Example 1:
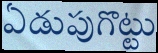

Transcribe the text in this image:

ఏడుపుగొట్టు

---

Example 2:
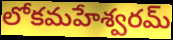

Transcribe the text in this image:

లోకమహేశ్వరమ్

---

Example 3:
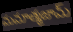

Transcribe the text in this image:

మమాత్మజామ్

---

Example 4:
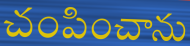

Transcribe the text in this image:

చంపించాను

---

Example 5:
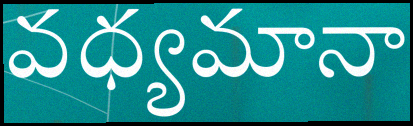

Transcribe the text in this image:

వధ్యమానా